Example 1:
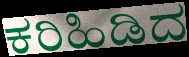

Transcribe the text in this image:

ಕರಿಹಿಡಿದ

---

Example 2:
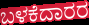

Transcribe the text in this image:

ಬಳಕೆದಾರರ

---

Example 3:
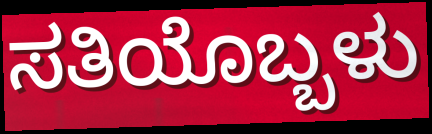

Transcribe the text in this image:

ಸತಿಯೊಬ್ಬಳು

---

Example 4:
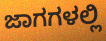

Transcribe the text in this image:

ಜಾಗಗಳಲ್ಲಿ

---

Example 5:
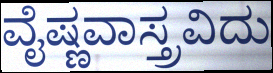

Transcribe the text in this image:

ವೈಷ್ಣವಾಸ್ತ್ರವಿದು